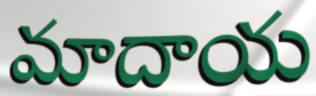
మాదాయ